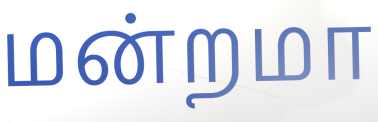
மன்றமா